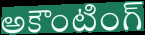
అకౌంటింగ్